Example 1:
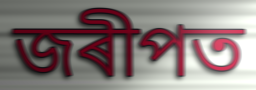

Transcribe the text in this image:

জৰীপত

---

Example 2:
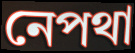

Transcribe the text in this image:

নেপথা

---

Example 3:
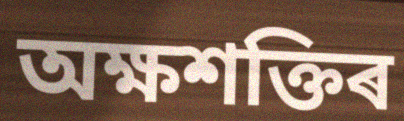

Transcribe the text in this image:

অক্ষশক্তিৰ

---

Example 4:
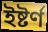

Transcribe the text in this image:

ইষ্টৰ্ণ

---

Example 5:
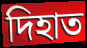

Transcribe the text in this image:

দিহাত